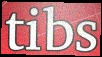
tibs